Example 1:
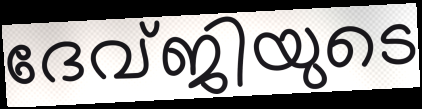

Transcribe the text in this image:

ദേവ്ജിയുടെ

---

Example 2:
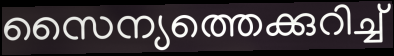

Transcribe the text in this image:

സൈന്യത്തെക്കുറിച്ച്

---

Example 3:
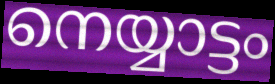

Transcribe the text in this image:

നെയ്യാട്ടം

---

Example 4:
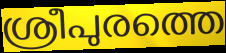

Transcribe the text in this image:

ശ്രീപുരത്തെ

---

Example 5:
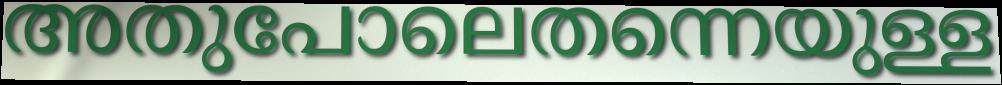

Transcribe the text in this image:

അതുപോലെതന്നെയുള്ള